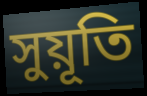
সুয়ূতি